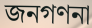
জনগণনা